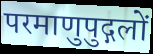
परमाणुपुद्गलों